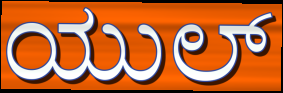
ಯುಲ್